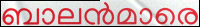
ബാലൻമാരെ